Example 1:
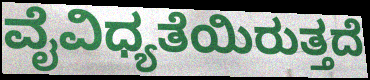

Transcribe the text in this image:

ವೈವಿಧ್ಯತೆಯಿರುತ್ತದೆ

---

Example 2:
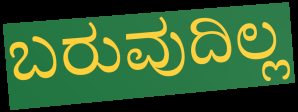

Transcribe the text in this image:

ಬರುವುದಿಲ್ಲ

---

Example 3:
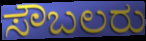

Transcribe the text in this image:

ಸೌಬಲರು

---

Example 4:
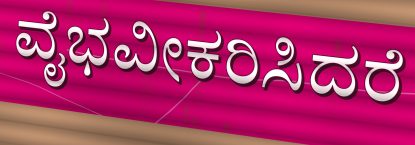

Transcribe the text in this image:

ವೈಭವೀಕರಿಸಿದರೆ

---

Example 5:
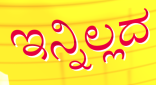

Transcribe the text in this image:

ಇನ್ನಿಲ್ಲದ